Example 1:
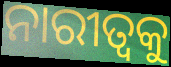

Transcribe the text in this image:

ନାରୀତ୍ୱକୁ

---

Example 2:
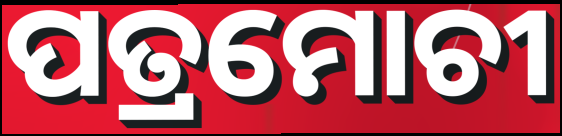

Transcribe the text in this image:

ପତ୍ରମୋଚୀ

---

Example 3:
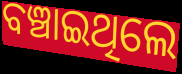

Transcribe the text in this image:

ବଞ୍ଚାଇଥିଲେ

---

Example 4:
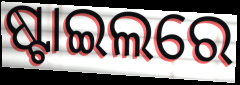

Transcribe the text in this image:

ଷ୍ଟାଇଲରେ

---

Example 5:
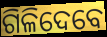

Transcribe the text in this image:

ଗିଳିଦେବେ